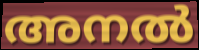
അനൽ